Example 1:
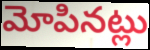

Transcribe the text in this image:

మోపినట్లు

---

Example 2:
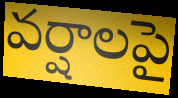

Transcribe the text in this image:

వర్షాలపై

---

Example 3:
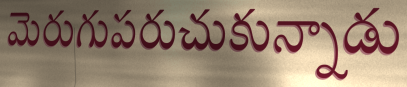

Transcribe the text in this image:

మెరుగుపరుచుకున్నాడు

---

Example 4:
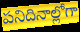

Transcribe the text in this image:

పనిదినాల్లోగా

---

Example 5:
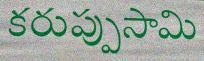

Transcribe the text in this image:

కరుప్పుసామి